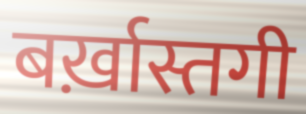
बर्ख़ास्तगी